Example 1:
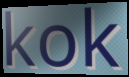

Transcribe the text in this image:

kok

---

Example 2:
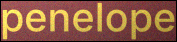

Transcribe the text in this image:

penelope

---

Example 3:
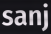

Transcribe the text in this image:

sanj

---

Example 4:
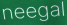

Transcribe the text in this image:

neegal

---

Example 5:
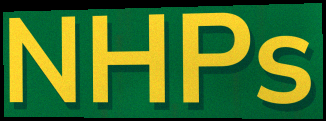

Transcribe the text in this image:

NHPs